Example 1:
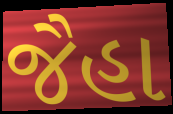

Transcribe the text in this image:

જૈહા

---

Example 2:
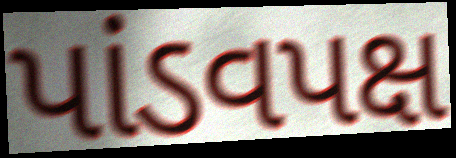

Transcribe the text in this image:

પાંડવપક્ષ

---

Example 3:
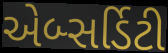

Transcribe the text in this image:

એબ્સર્ડિટી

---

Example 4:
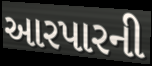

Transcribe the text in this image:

આરપારની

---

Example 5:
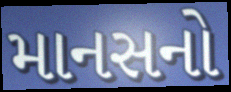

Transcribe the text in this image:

માનસનો